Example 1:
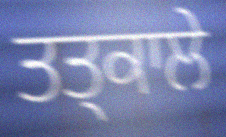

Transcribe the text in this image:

ਤਤ੍ਕਾਲੇ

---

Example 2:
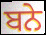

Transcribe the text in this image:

ਬਨੇ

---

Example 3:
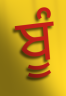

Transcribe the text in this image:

ਬੂੰ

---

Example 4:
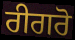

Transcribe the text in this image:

ਰੀਗਰੋ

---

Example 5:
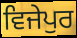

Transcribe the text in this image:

ਵਿਜੇਪੁਰ